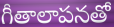
గీతాలాపనతో